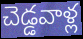
చెడ్డవాళ్ల